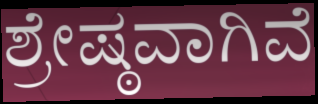
ಶ್ರೇಷ್ಠವಾಗಿವೆ